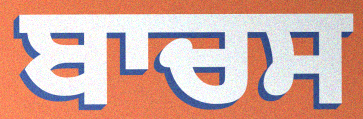
ਬਾਚਸ